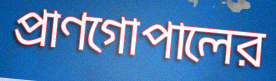
প্রাণগোপালের